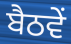
ਬੈਠਵੇਂ